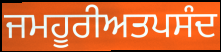
ਜਮਹੂਰੀਅਤਪਸੰਦ